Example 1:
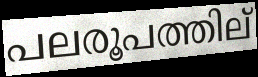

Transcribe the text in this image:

പലരൂപത്തില്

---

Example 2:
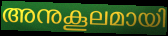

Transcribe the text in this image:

അനുകൂലമായി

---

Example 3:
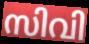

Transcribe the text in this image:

സിവി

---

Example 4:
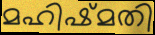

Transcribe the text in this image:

മഹിഷ്മതി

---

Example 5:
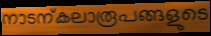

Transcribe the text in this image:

നാടന്കലാരൂപങ്ങളുടെ